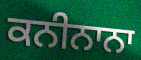
ਕਨੀਨਾਨਾ